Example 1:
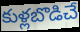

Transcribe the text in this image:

కుళ్లబొడిచే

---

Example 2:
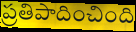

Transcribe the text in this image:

ప్రతిపాదించింది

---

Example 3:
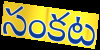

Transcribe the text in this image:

సంకట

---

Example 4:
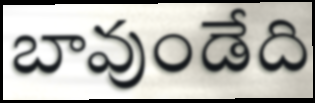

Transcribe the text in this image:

బావుండేది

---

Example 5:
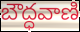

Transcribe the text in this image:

బౌద్ధవాణి